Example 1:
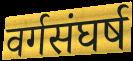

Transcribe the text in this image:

वर्गसंघर्ष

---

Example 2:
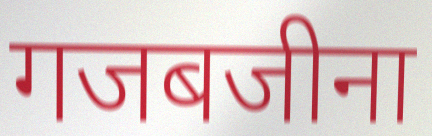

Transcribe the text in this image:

गजबजीना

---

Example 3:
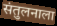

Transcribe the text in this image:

संतुलनाला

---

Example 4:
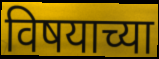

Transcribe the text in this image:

विषयाच्या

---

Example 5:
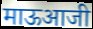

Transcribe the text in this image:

माऊआजी